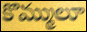
కొమ్ములూ